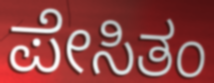
ಪೇಸಿತಂ